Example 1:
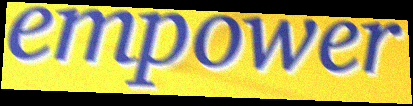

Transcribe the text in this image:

empower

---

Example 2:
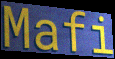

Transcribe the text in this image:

Mafi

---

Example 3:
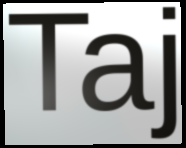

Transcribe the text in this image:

Taj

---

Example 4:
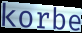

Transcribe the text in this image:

korbe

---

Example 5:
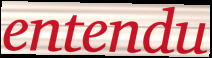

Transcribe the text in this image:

entendu